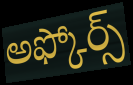
అఫ్కోర్స్